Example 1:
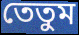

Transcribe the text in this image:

তেতুম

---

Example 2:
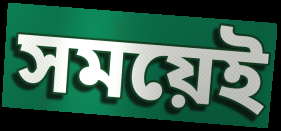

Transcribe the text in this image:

সময়েই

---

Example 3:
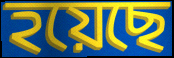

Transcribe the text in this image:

হয়েছে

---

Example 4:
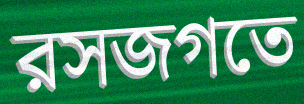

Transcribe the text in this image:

রসজগতে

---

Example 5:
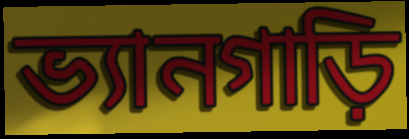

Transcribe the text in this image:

ভ্যানগাড়ি